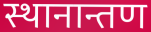
स्थानान्तण